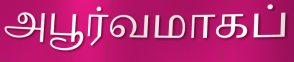
அபூர்வமாகப்